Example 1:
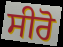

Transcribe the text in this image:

ਸੀਰੋ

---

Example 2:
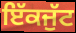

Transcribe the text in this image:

ਇੱਕਜੁੱਟ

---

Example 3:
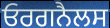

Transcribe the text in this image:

ਓਰਗਨੈਲਸ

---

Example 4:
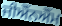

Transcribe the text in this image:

ਜੀਐੱਨਐੱਮ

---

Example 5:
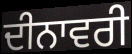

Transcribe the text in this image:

ਦੀਨਾਵਰੀ